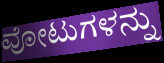
ವೋಟುಗಳನ್ನು